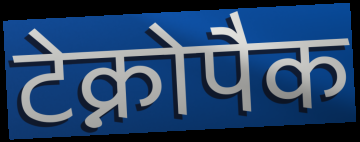
टेक्नोपैक